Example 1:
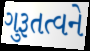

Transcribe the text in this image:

ગુરૂતત્વને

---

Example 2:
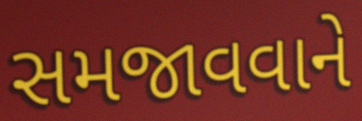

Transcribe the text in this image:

સમજાવવાને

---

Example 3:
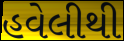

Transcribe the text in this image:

હવેલીથી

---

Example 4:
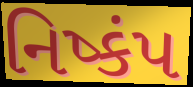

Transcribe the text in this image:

નિષ્કંપ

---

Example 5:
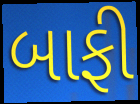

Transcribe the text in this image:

બાફી